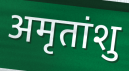
अमृतांशु